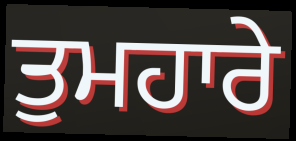
ਤੁਮਹਾਰੇ